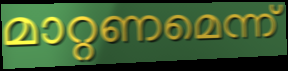
മാറ്റണമെന്ന്